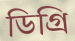
ডিগ্রি